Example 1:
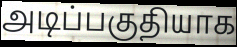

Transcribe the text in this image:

அடிப்பகுதியாக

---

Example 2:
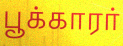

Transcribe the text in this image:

பூக்காரர்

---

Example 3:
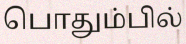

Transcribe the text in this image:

பொதும்பில்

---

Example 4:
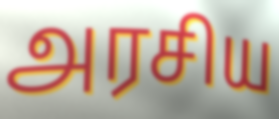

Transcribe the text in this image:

அரசிய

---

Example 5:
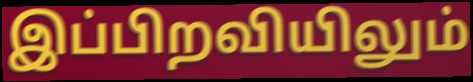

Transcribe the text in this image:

இப்பிறவியிலும்